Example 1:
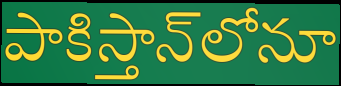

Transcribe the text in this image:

పాకిస్తాన్‌లోనూ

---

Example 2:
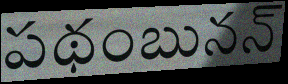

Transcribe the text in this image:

పథంబునన్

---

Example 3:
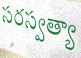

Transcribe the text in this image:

సరస్వత్యా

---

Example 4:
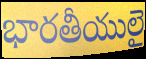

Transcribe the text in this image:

భారతీయులై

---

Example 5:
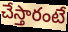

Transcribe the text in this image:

చేస్తారంటే